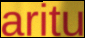
aritu